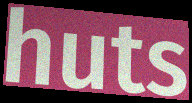
huts